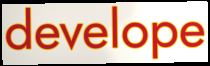
develope